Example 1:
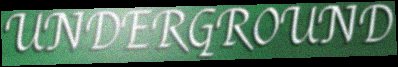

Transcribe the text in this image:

UNDERGROUND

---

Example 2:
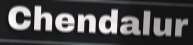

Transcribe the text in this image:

Chendalur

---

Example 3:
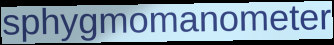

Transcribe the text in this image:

sphygmomanometer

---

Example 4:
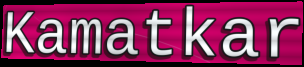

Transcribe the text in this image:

Kamatkar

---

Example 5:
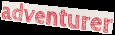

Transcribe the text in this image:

adventurer